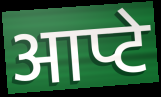
आप्टे